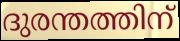
ദുരന്തത്തിന്